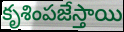
కృశింపజేస్తాయి